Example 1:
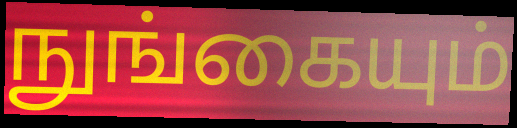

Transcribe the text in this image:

நுங்கையும்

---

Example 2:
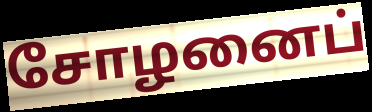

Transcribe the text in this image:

சோழனைப்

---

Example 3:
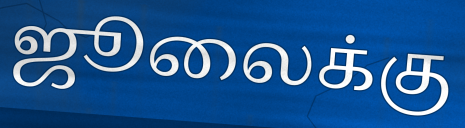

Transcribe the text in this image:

ஜூலைக்கு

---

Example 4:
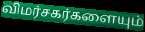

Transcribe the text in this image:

விமர்சகர்களையும்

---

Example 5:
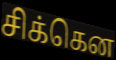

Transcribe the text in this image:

சிக்கென